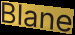
Blane